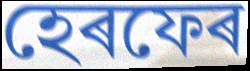
হেৰফেৰ